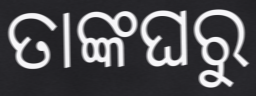
ତାଙ୍କଘରୁ